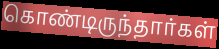
கொண்டிருந்தார்கள்